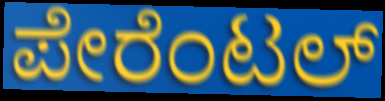
ಪೇರೆಂಟಲ್